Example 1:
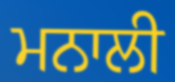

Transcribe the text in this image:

ਮਨਾਲੀ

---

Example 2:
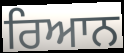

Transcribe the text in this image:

ਰਿਆਨ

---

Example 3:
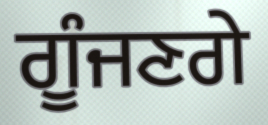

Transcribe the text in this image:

ਗੂੰਜਣਗੇ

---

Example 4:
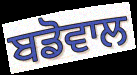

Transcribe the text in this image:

ਬਡੋਵਾਲ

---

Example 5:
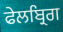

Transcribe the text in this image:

ਫੇਲਬ੍ਰਿਗ